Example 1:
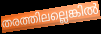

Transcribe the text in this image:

തരത്തിലല്ലെങ്കിൽ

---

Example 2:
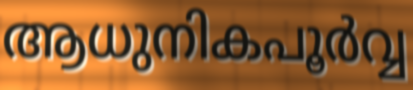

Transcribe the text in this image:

ആധുനികപൂർവ്വ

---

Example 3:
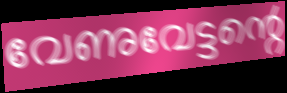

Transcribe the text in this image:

വേണുവേട്ടന്റെ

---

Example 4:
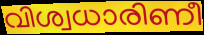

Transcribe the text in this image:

വിശ്വധാരിണീ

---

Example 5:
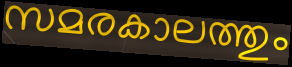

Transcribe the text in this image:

സമരകാലത്തും